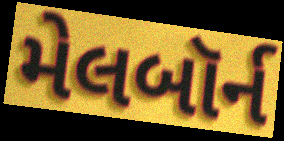
મેલબૉર્ન